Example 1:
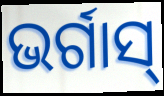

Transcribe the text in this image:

ଭର୍ଗାସ୍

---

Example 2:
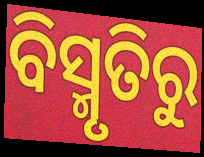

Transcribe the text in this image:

ବିସ୍ମୃତିରୁ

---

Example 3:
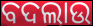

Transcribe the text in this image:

ବଦଲାଉ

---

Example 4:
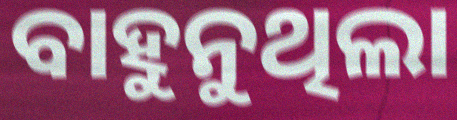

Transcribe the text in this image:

ବାହୁନୁଥିଲା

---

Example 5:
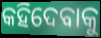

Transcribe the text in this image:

କହିଦେବାକୁ